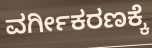
ವರ್ಗೀಕರಣಕ್ಕೆ